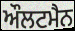
ਔਲਟਮੈਨ